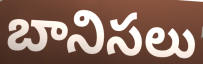
బానిసలు